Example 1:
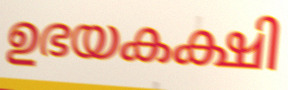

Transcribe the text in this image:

ഉഭയകക്ഷി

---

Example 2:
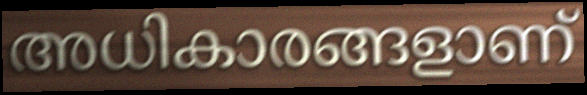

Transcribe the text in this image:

അധികാരങ്ങളാണ്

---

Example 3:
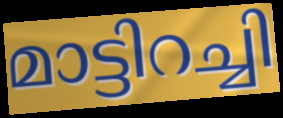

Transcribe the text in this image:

മാട്ടിറച്ചി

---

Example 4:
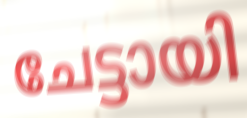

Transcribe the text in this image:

ചേട്ടായി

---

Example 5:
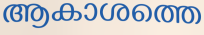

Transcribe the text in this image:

ആകാശത്തെ